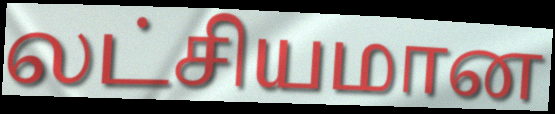
லட்சியமான